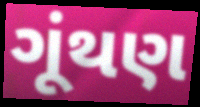
ગૂંથણ